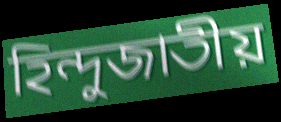
হিন্দুজাতীয়